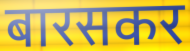
बारसकर